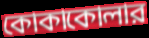
কোকাকোলার